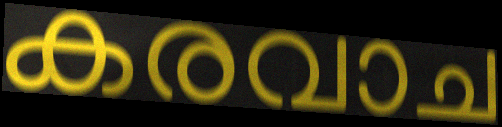
കരവാച